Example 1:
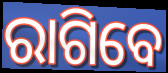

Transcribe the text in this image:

ରାଗିବେ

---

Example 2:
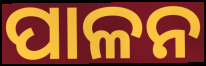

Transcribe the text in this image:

ପାଳନ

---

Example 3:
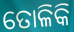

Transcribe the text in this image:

ତୋଳିକି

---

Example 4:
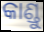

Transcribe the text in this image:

କାଣ୍ଡୁ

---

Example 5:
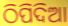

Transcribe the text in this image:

ଠିପିଦିଆ